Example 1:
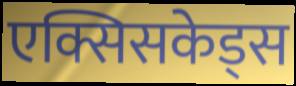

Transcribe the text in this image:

एक्सिसकेड्स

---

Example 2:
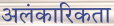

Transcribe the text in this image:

अलंकारिकता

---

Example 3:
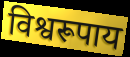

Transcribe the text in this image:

विश्वरूपाय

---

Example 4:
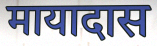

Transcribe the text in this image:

मायादास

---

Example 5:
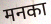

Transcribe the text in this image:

मनका